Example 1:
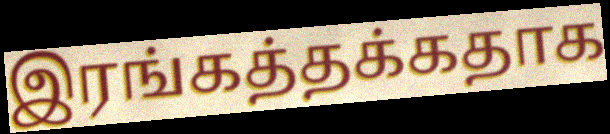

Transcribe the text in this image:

இரங்கத்தக்கதாக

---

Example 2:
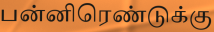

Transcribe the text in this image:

பன்னிரெண்டுக்கு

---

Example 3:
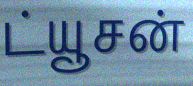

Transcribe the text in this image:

ட்யூசன்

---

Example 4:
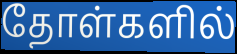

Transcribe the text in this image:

தோள்களில்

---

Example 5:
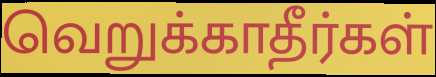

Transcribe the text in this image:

வெறுக்காதீர்கள்